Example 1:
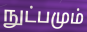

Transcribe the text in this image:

நுட்பமும்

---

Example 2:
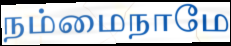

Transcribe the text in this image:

நம்மைநாமே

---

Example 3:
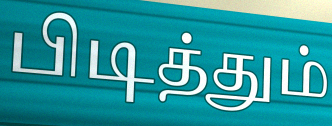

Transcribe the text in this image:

பிடித்தும்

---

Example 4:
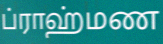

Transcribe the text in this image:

ப்ராஹ்மண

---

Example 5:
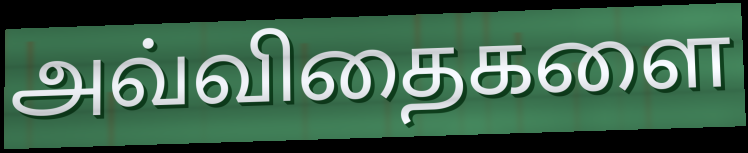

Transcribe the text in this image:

அவ்விதைகளை